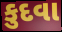
કુદવા